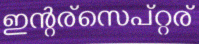
ഇന്റര്സെപ്റ്റര്